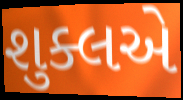
શુક્લએ